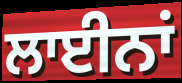
ਲਾਈਨਾਂ